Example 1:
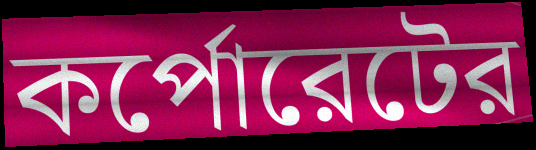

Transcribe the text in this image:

কর্পোরেটের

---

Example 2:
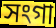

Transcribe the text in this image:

সংগা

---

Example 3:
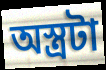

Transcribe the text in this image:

অস্ত্রটা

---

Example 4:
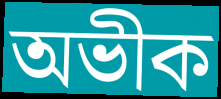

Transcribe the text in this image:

অভীক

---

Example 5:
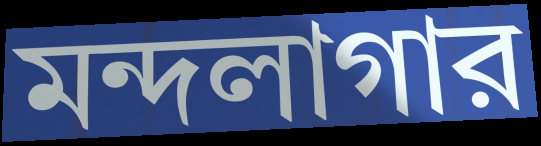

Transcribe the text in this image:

মন্দলাগার